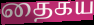
தைகய